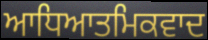
ਆਧਿਆਤਮਿਕਵਾਦ